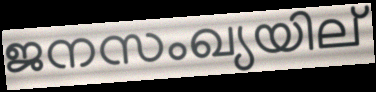
ജനസംഖ്യയില്